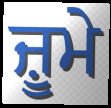
ਜ਼ੂਮੇ